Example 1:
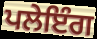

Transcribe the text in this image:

ਪਲੇਇੰਗ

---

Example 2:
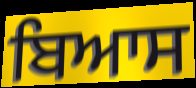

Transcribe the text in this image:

ਬਿਆਸ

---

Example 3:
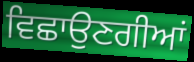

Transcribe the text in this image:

ਵਿਛਾਉਣਗੀਆਂ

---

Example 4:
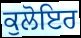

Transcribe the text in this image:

ਕੁਲੋਇਰ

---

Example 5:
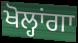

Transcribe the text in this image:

ਖੋਲ੍ਹਾਂਗਾ